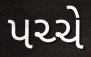
પચ્ચે